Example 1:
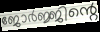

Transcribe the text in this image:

ജോർജ്ജിന്റെ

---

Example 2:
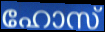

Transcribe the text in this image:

ഹോസ്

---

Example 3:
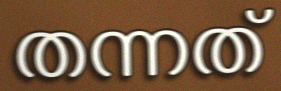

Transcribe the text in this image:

തന്നത്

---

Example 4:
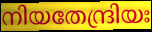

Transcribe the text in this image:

നിയതേന്ദ്രിയഃ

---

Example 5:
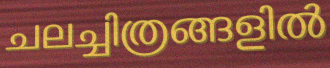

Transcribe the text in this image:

ചലച്ചിത്രങ്ങളിൽ